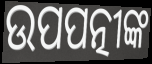
ଉପପତ୍ନୀଙ୍କ